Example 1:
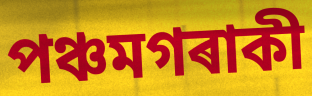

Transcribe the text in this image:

পঞ্চমগৰাকী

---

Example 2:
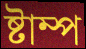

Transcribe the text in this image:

ষ্টাম্প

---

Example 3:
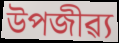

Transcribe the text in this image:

উপজীৱ্য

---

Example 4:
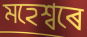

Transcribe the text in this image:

মহেশ্বৰে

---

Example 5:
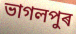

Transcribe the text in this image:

ভাগলপুৰ